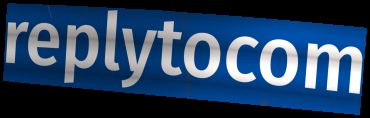
replytocom